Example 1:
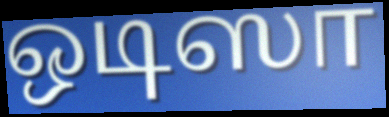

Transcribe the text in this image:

ஒடிஸா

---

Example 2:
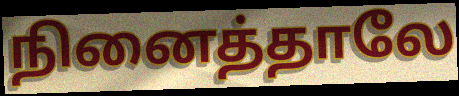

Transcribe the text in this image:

நினைத்தாலே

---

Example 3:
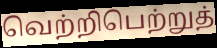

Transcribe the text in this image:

வெற்றிபெற்றுத்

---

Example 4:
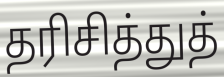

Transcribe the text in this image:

தரிசித்துத்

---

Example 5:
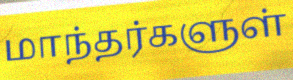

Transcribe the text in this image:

மாந்தர்களுள்